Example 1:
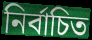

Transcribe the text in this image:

নির্বাচিত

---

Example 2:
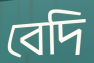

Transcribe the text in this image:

বেদি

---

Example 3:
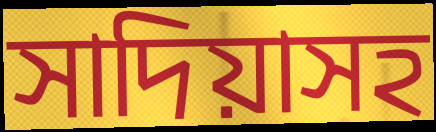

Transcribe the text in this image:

সাদিয়াসহ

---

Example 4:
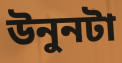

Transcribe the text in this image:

উনুনটা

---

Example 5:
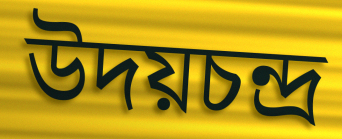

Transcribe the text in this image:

উদয়চন্দ্র